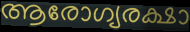
ആരോഗ്യരക്ഷാ